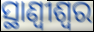
ସ୍ଥାଣ୍ୱୀଶ୍ଵର